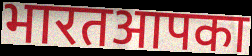
भारतआपका